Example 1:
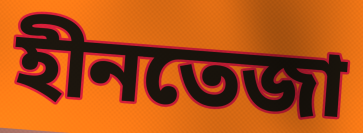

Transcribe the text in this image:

হীনতেজা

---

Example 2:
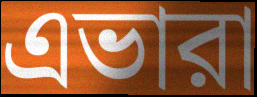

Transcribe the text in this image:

এভারা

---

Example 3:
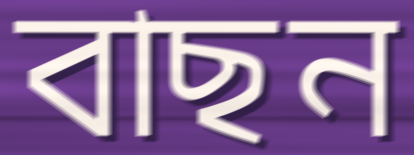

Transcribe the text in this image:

বাছন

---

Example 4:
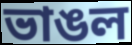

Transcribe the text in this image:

ভাঙল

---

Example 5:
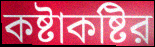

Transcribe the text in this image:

কষ্টাকষ্টির